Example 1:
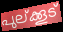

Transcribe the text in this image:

പുല്ക്കൂട്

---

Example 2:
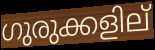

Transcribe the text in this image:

ഗുരുക്കളില്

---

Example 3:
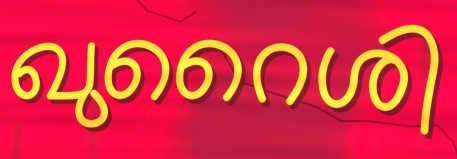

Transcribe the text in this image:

ഖുറൈശി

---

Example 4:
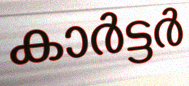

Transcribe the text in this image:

കാർട്ടർ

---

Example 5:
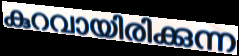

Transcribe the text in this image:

കുറവായിരിക്കുന്ന